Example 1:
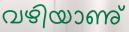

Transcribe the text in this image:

വഴിയാണു്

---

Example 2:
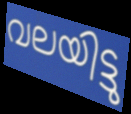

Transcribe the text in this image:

വലയിട്ടു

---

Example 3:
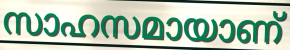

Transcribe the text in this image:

സാഹസമായാണ്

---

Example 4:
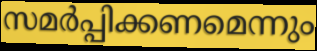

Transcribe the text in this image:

സമർപ്പിക്കണമെന്നും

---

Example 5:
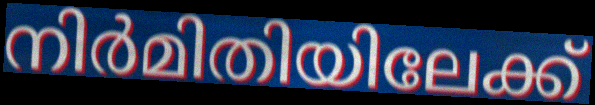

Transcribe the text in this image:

നിർമിതിയിലേക്ക്